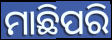
ମାଛିପରି